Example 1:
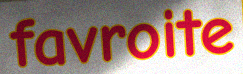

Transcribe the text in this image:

favroite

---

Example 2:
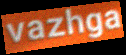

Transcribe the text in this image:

vazhga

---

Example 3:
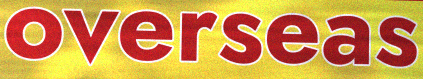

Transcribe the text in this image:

overseas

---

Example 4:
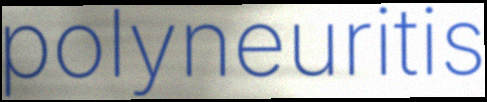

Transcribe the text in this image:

polyneuritis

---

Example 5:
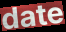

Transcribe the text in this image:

date